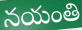
నయంతి